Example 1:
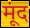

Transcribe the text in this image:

मूंद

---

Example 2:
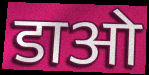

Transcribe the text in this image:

डाओ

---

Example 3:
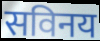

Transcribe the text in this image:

सविनय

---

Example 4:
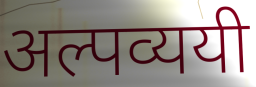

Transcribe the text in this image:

अल्पव्ययी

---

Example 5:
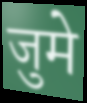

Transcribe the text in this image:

जुमे